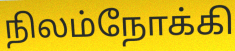
நிலம்நோக்கி